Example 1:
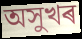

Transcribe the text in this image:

অসুখৰ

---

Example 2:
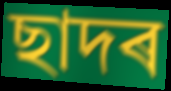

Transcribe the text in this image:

ছাদৰ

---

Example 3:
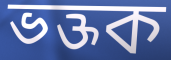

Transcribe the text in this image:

ভক্তক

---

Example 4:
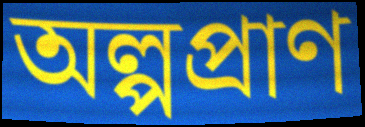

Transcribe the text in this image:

অল্পপ্ৰাণ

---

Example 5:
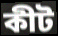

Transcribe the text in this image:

কীট